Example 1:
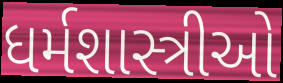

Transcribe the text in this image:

ધર્મશાસ્ત્રીઓ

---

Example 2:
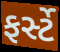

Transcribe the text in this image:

ફર્સ્ટે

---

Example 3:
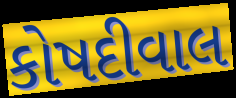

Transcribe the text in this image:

કોષદીવાલ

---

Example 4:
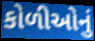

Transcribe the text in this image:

કોળીઓનું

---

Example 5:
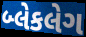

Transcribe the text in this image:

બ્લેકલેગ